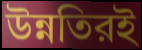
উন্নতিরই